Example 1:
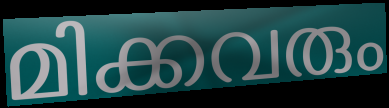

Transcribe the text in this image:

മിക്കവരും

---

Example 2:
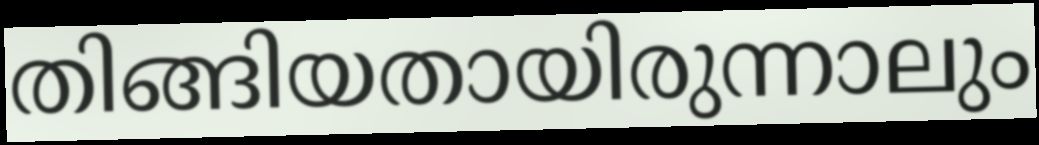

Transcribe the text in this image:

തിങ്ങിയതായിരുന്നാലും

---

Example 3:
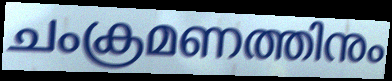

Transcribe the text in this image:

ചംക്രമണത്തിനും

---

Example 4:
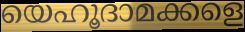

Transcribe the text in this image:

യെഹൂദാമക്കളെ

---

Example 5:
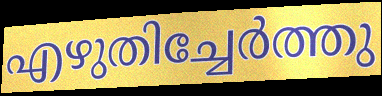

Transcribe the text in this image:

എഴുതിച്ചേർത്തു